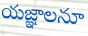
యజ్ఞాలనూ